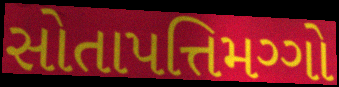
સોતાપત્તિમગ્ગો